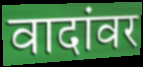
वादांवर